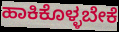
ಹಾಕಿಕೊಳ್ಳಬೇಕೆ